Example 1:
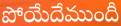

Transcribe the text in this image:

పోయేదేముందీ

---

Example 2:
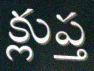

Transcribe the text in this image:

క్లుప్త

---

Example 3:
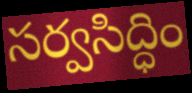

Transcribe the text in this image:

సర్వసిద్ధిం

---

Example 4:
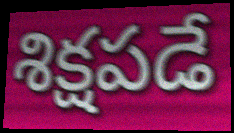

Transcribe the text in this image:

శిక్షపడే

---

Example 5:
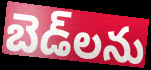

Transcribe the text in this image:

బెడ్‌లను